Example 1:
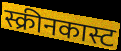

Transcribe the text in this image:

स्क्रीनकास्ट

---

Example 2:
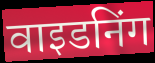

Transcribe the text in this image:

वाइडनिंग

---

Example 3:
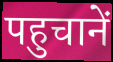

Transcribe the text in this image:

पहुचानें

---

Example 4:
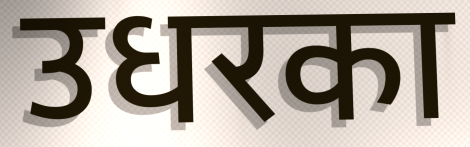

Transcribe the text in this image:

उधरका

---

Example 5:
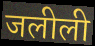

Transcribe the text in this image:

जलीली